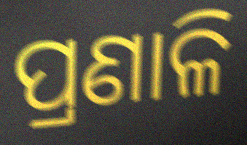
ପ୍ରଣାଳି